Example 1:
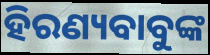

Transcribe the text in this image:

ହିରଣ୍ୟବାବୁଙ୍କ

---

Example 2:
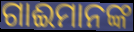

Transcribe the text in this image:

ଗାଈମାନଙ୍କ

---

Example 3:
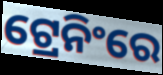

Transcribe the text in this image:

ଟ୍ରେନିଂରେ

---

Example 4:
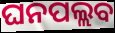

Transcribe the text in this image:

ଘନପଲ୍ଲବ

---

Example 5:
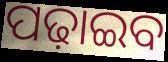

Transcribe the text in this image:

ପଢ଼ାଇବ